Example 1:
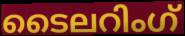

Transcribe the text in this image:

ടൈലറിംഗ്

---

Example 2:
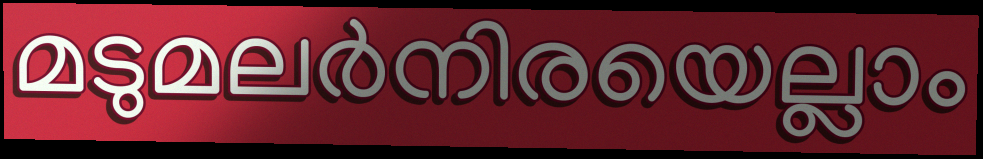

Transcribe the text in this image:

മടുമലർനിരയെല്ലാം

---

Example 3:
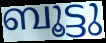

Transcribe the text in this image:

ബൂട്ടു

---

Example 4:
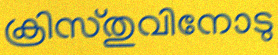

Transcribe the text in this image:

ക്രിസ്തുവിനോടു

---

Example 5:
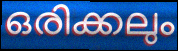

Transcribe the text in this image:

ഒരിക്കലും